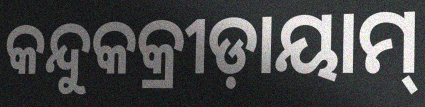
କନ୍ଦୁକକ୍ରୀଡ଼ାୟାମ୍